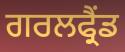
ਗਰਲਫ੍ਰੈਂਡ